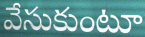
వేసుకుంటూ